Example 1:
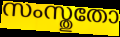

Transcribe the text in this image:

സംസ്തുതോ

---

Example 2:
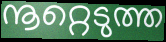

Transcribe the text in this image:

നൂറ്റെടുത്ത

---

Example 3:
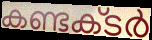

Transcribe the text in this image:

കണ്ടക്‌ടർ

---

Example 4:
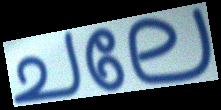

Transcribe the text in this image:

ചലേ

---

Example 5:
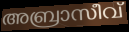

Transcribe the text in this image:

അബ്രാസീവ്